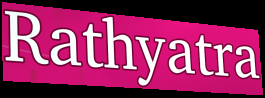
Rathyatra